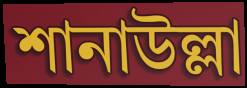
শানাউল্লা